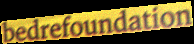
bedrefoundation